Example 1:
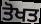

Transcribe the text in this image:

ਤੋਖਤ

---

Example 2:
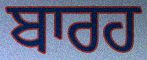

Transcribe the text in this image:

ਬਾਰਹ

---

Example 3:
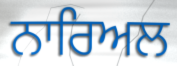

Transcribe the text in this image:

ਨਾਰਿਅਲ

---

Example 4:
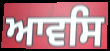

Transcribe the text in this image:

ਆਵਸਿ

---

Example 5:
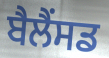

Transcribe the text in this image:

ਬੈਲੈਂਸਡ